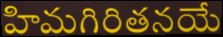
హిమగిరితనయే